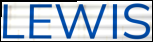
LEWIS